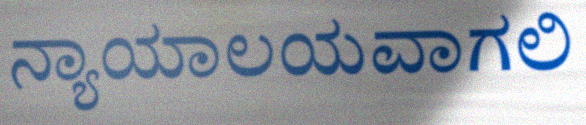
ನ್ಯಾಯಾಲಯವಾಗಲಿ